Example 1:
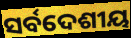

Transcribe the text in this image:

ସର୍ବଦେଶୀୟ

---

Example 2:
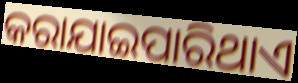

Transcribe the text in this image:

କରାଯାଇପାରିଥାଏ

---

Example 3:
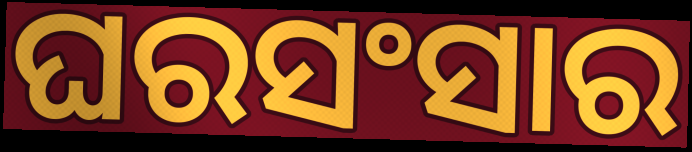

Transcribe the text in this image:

ଘରସଂସାର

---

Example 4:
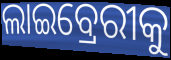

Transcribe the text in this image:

ଲାଇବ୍ରେରୀକୁ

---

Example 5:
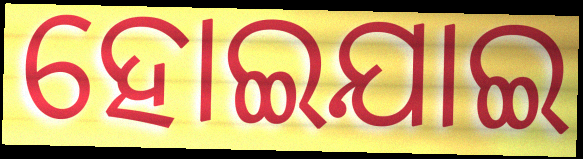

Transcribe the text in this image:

ହୋଇଯାଇ